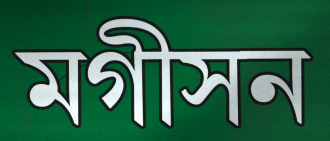
মগীসন